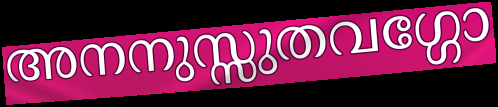
അനനുസ്സുതവഗ്ഗോ